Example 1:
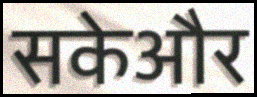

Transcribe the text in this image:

सकेऔर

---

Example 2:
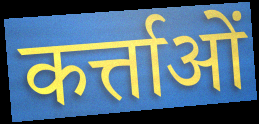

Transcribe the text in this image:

कर्त्ताओं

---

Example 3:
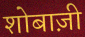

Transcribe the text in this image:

शोबाज़ी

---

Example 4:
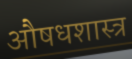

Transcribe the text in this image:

औषधशास्त्र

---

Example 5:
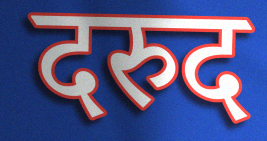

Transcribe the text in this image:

दरुद